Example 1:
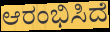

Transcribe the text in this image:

ಆರಂಭಿಸಿದೆ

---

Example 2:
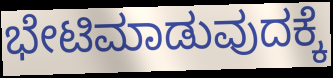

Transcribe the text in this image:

ಭೇಟಿಮಾಡುವುದಕ್ಕೆ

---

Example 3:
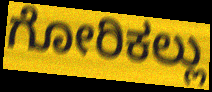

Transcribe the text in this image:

ಗೋರಿಕಲ್ಲು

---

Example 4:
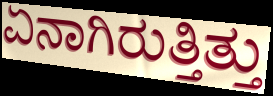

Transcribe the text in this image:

ಏನಾಗಿರುತ್ತಿತ್ತು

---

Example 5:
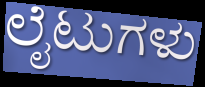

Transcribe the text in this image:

ಲೈಟುಗಳು